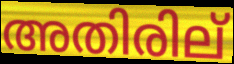
അതിരില്